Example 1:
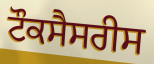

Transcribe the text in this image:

ਟੌਕਸੈਸਰੀਸ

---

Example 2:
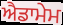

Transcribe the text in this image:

ਐਡਾਮੇਮ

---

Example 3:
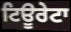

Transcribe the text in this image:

ਟਿਊਰੇਟਾ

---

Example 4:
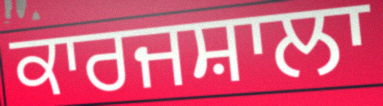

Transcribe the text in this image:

ਕਾਰਜਸ਼ਾਲਾ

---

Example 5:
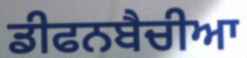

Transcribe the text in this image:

ਡੀਫਨਬੈਚੀਆ